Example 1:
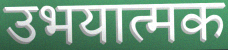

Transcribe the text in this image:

उभयात्मक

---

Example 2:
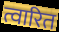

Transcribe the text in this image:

त्वारित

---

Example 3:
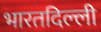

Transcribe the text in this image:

भारतदिल्ली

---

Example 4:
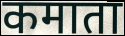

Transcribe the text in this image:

कमाता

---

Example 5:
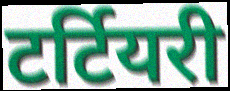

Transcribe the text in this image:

टर्टियरी